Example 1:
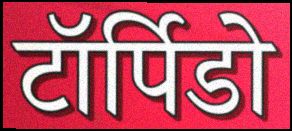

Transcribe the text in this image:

टॉर्पिडो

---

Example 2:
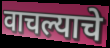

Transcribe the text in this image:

वाचल्याचे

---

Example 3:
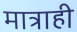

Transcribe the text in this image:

मात्राही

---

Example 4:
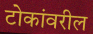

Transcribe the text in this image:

टोकांवरील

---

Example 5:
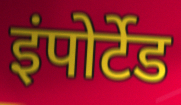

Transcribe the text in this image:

इंपोर्टेड